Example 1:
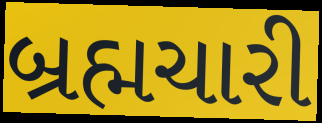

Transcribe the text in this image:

બ્રહ્મચારી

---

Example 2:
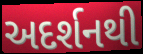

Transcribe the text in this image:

અદર્શનથી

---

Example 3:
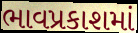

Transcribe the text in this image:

ભાવપ્રકાશમાં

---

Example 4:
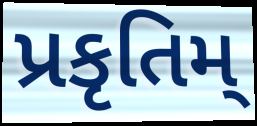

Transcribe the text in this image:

પ્રકૃતિમ્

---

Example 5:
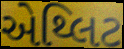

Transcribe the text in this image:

એથ્લિટ